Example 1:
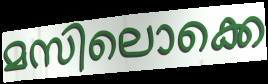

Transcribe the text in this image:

മസിലൊക്കെ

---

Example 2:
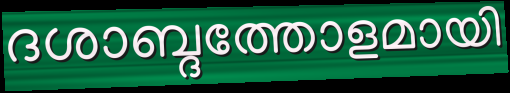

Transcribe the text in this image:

ദശാബ്ദത്തോളമായി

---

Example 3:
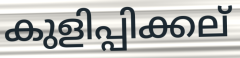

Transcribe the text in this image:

കുളിപ്പിക്കല്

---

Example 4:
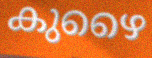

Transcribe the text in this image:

കുഴൈ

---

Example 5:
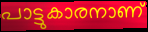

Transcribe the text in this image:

പാട്ടുകാരനാണ്